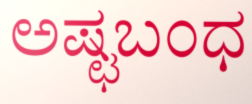
ಅಷ್ಟಬಂಧ